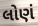
લોણં